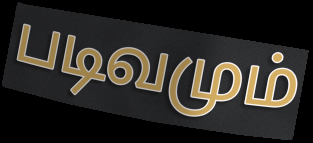
படிவமும்